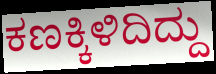
ಕಣಕ್ಕಿಳಿದಿದ್ದು